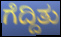
ಗೆದ್ದಿತು